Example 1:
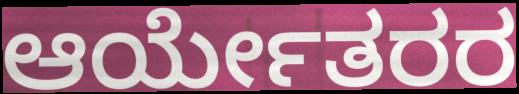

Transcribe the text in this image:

ಆರ್ಯೇತರರ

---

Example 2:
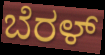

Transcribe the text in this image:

ಬೆರಳ್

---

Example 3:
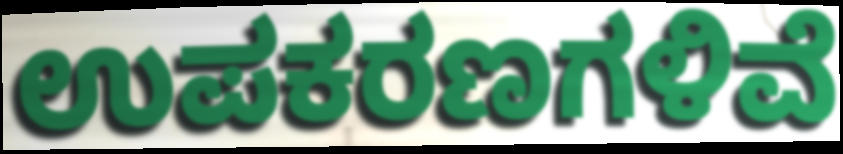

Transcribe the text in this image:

ಉಪಕರಣಗಳಿವೆ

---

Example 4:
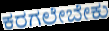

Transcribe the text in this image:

ಕರಗಲೇಬೇಕು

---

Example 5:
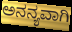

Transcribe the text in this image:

ಅನನ್ಯವಾಗಿ